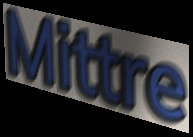
Mittre